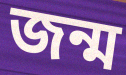
জন্ম